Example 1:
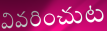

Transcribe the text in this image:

వివరించుట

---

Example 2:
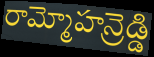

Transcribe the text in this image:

రామ్మోహన్రెడ్డి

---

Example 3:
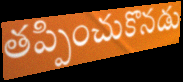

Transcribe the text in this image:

తప్పించుకొనడు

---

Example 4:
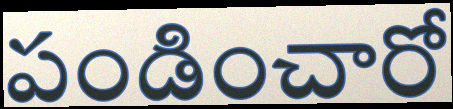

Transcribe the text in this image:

పండించారో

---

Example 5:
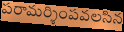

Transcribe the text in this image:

పరామర్శింపవలసిన